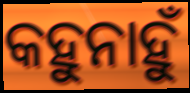
କହୁନାହୁଁ